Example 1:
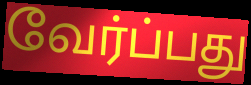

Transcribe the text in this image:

வேர்ப்பது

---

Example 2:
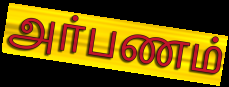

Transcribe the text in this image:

அர்பணம்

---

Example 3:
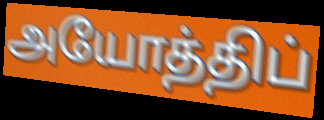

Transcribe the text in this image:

அயோத்திப்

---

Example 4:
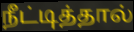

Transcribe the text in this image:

நீட்டித்தால்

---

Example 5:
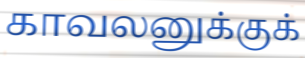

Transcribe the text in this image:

காவலனுக்குக்